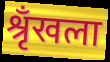
श्रृँखला